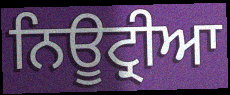
ਨਿਊਟ੍ਰੀਆ